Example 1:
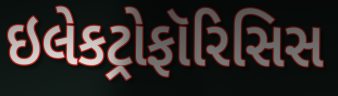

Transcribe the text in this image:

ઇલેકટ્રોફૉરિસિસ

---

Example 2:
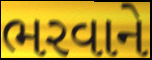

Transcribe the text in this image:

ભરવાને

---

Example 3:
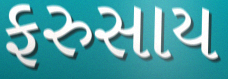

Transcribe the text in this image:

ફરુસાય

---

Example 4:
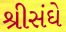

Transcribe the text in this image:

શ્રીસંઘે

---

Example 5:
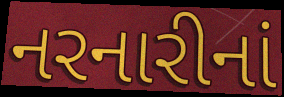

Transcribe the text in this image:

નરનારીનાં